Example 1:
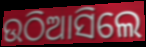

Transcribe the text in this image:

ଉଠିଆସିଲେ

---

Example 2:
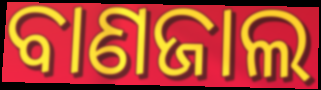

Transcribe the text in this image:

ବାଣଜାଲ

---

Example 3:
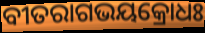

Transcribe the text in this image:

ବୀତରାଗଭୟକ୍ରୋଧଃ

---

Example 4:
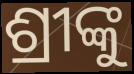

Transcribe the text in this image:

ଶ୍ରୀଙ୍କୁ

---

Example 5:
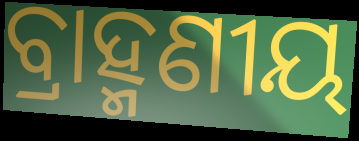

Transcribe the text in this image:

ବ୍ରାହ୍ମଣୀୟ